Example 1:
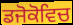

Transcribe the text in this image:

ਡਜੋਕੋਵਿਚ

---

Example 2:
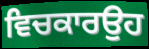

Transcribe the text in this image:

ਵਿਚਕਾਰਉਹ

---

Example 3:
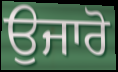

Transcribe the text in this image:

ਉਜਾਰੋ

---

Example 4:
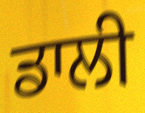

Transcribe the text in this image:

ਡਾਲੀ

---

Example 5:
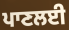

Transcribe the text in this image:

ਪਾਣਲਈ